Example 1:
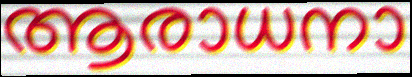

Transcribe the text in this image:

ആരാധനാ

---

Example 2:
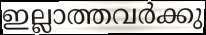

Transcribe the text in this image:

ഇല്ലാത്തവർക്കു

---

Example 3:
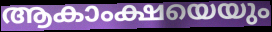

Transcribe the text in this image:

ആകാംക്ഷയെയും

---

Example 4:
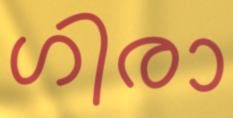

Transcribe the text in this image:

ഗിരാ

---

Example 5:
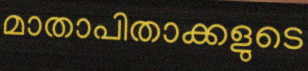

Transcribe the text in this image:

മാതാപിതാക്കളുടെ